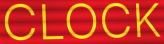
CLOCK